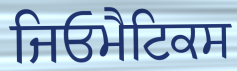
ਜਿਓਮੈਟਿਕਸ